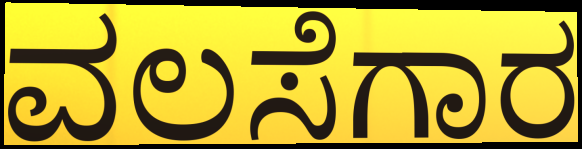
ವಲಸೆಗಾರ